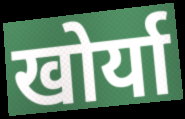
खोर्या